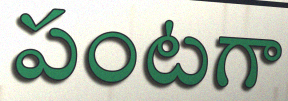
పంటగా